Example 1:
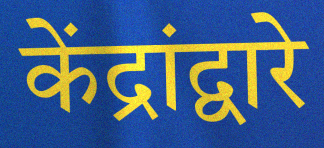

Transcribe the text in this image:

केंद्रांद्वारे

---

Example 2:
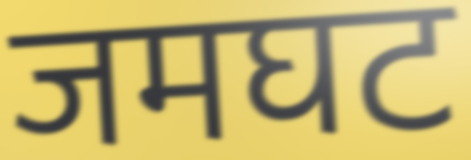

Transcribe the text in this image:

जमघट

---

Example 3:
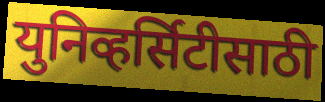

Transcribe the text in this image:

युनिव्हर्सिटीसाठी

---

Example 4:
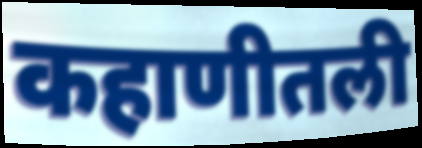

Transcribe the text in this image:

कहाणीतली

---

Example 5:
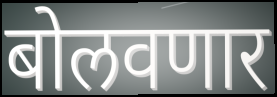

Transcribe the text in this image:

बोलवणार